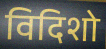
विदिशो